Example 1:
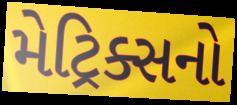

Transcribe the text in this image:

મેટ્રિક્સનો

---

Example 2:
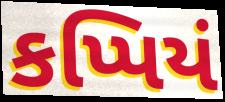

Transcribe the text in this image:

કપ્પિયં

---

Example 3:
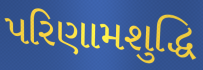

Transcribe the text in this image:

પરિણામશુદ્ધિ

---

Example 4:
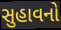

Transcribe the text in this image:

સુહાવનો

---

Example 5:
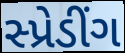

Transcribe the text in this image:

સ્પ્રેડીંગ